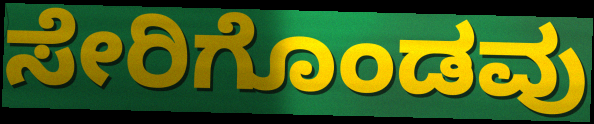
ಸೇರಿಗೊಂಡವು